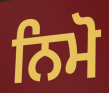
ਨਿਮੋ